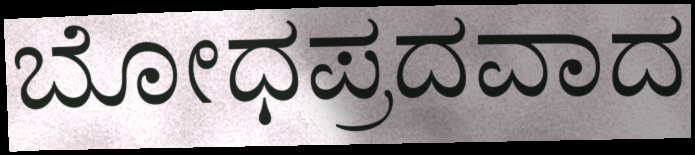
ಬೋಧಪ್ರದವಾದ